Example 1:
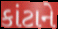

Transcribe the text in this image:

કાંટાને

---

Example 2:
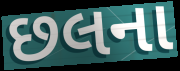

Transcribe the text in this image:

છલના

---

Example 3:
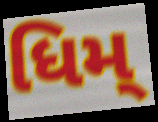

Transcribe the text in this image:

ધિમ્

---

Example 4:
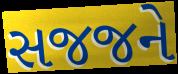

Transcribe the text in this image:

સજજને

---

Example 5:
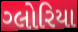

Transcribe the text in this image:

ગ્લોરિયા